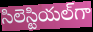
సిలెస్టియల్‌గా